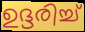
ഉദ്ദരിച്ച്